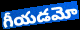
గీయడమో